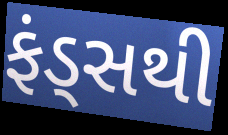
ફંડ્સથી